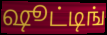
ஷூட்டிங்